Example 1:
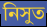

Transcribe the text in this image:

নিসুত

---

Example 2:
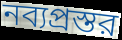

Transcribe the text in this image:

নব্যপ্রস্তর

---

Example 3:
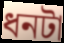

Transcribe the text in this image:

ধনটা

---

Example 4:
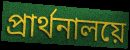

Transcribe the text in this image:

প্রার্থনালয়ে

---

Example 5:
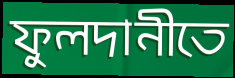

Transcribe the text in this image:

ফুলদানীতে